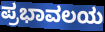
ಪ್ರಭಾವಲಯ